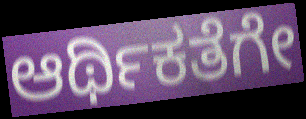
ಆರ್ಥಿಕತೆಗೇ